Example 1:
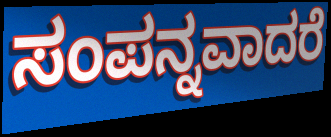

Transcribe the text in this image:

ಸಂಪನ್ನವಾದರೆ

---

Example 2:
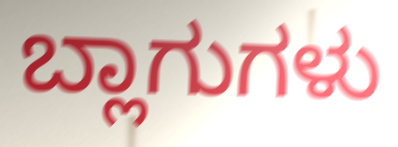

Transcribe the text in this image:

ಬ್ಲಾಗುಗಳು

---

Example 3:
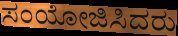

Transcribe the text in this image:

ಸಂಯೋಜಿಸಿದರು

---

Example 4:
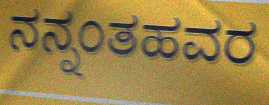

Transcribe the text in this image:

ನನ್ನಂತಹವರ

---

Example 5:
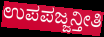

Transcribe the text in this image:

ಉಪಪಜ್ಜನ್ತೀತಿ